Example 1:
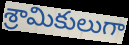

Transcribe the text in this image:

శ్రామికులుగా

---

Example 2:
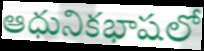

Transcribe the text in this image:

ఆధునికభాషలో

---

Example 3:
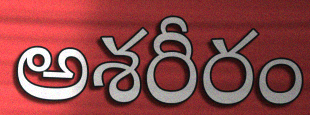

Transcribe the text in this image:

అశరీరం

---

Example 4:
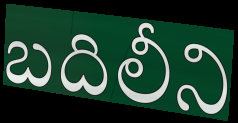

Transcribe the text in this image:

బదిలీని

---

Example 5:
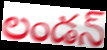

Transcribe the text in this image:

లండన్